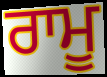
ਰਾਮੂ